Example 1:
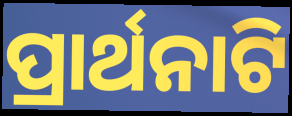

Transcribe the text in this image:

ପ୍ରାର୍ଥନାଟି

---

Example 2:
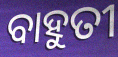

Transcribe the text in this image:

ବାହୁତୀ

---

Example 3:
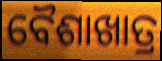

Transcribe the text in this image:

ବୈଶାଖାତ୍ର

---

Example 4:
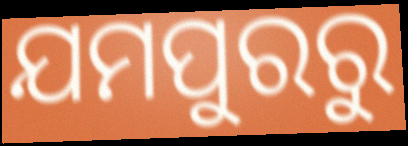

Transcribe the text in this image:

ଯମପୁରରୁ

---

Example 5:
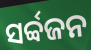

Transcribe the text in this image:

ସର୍ବ୍ବଜନ